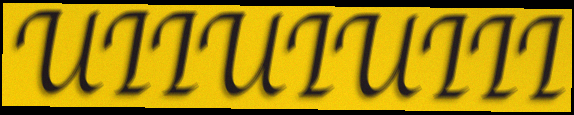
UIIUIUIII